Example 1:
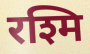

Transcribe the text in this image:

रश्मि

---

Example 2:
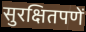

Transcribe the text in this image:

सुरक्षितपणें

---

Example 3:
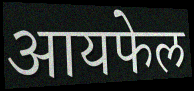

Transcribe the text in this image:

आयफेल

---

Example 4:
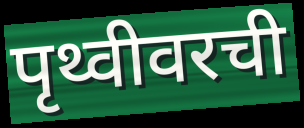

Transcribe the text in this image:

पृथ्वीवरची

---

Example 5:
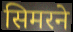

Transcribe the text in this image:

सिमरने